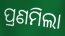
ପ୍ରଣମିଲା